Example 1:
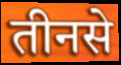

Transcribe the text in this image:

तीनसे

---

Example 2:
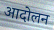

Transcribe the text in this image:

आदोलन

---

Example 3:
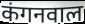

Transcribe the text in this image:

कंगनवाल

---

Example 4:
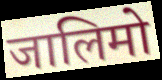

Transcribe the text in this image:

जालिमो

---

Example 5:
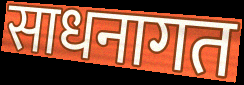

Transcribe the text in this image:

साधनागत